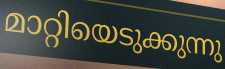
മാറ്റിയെടുക്കുന്നു